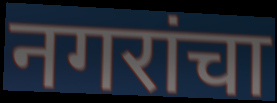
नगरांचा